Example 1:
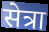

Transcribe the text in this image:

सेत्रा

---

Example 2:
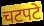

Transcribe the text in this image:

चटपटे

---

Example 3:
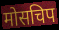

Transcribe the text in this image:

मोसचिप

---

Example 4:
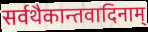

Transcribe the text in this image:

सर्वथैकान्तवादिनाम्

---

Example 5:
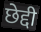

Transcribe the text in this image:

छेद्दी